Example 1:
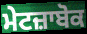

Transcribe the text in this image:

ਮੇਟਜ਼ਾਬੋਕ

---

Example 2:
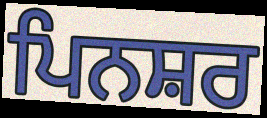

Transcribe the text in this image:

ਪਿਨਸ਼ਰ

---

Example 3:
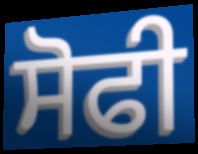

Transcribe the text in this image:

ਸੋਫੀ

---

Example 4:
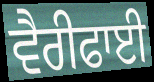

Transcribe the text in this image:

ਵੈਰੀਫਾਈ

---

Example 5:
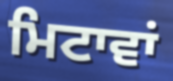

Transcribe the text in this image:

ਮਿਟਾਵਾਂ